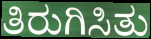
ತಿರುಗಿಸಿತು